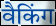
वैकिंग